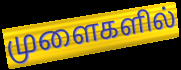
முளைகளில்